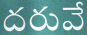
దరువే